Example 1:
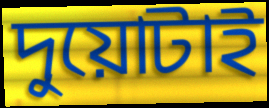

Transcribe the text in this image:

দুয়োটাই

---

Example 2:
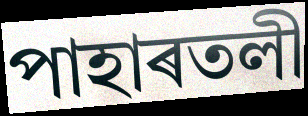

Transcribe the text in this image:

পাহাৰতলী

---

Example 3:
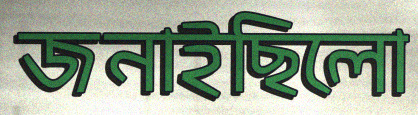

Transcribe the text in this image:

জনাইছিলো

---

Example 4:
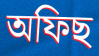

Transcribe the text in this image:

অফিছ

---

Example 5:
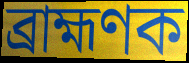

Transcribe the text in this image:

ব্ৰাহ্মণক